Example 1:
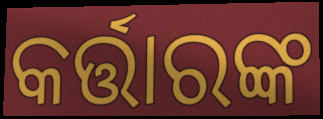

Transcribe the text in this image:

କର୍ତ୍ତାରଙ୍କ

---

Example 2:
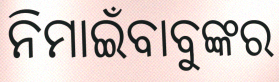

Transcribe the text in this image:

ନିମାଇଁବାବୁଙ୍କର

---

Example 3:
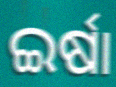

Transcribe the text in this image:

ଇର୍ଷା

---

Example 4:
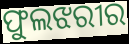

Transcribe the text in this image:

ଫୁଲଝରୀର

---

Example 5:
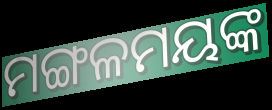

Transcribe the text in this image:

ମଙ୍ଗଳମୟଙ୍କ